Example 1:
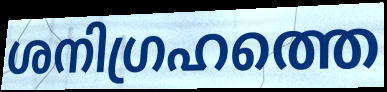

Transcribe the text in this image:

ശനിഗ്രഹത്തെ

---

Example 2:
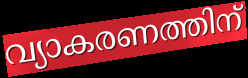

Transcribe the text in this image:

വ്യാകരണത്തിന്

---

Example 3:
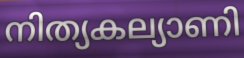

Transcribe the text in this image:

നിത്യകല്യാണി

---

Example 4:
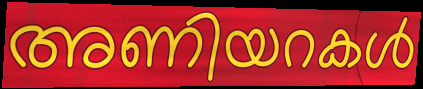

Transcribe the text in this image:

അണിയറകൾ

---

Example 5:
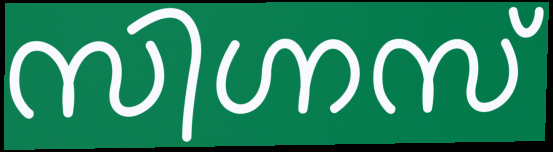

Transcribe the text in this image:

സിഗ്നസ്